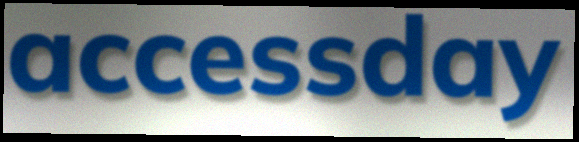
accessday